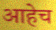
आहेच